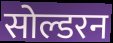
सोल्डरन